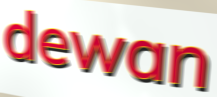
dewan